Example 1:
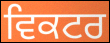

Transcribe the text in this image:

ਵਿਕਟਰ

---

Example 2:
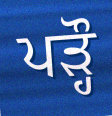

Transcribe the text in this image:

ਪੜ੍ਹੌ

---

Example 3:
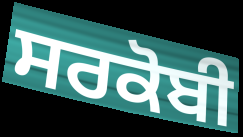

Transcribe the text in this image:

ਸਰਕੋਬੀ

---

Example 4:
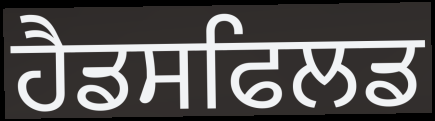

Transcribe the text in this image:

ਹੈਡਸਫਿਲਡ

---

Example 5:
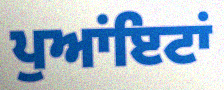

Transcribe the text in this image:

ਪੁਆਂਇਟਾਂ